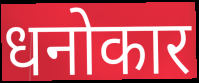
धनोकार